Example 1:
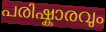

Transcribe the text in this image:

പരിഷ്കാരവും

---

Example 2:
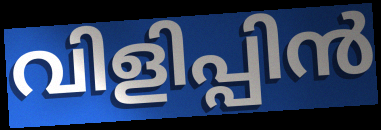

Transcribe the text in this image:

വിളിപ്പിൻ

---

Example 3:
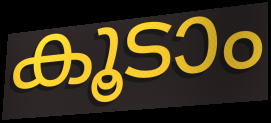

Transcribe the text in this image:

കൂടാം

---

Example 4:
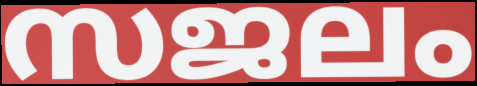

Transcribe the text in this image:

സജലം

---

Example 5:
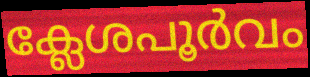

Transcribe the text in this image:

ക്ലേശപൂർവം